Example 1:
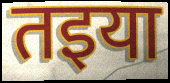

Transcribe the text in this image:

तइया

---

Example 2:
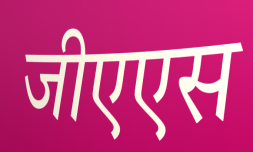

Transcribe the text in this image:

जीएएस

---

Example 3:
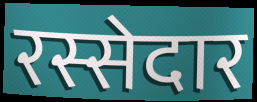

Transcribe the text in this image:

रस्सेदार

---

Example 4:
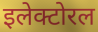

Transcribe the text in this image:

इलेक्टोरल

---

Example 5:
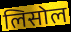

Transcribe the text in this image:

लिसोल